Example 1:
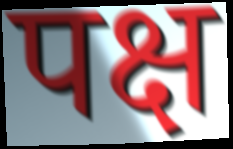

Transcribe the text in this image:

पक्ष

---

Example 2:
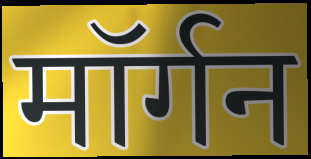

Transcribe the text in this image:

मॉर्गन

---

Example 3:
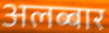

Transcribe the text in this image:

अलब्बार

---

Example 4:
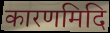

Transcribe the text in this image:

कारणमिदि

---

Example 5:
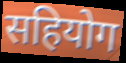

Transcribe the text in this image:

सहियोग